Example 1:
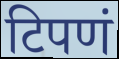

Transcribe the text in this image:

टिपणं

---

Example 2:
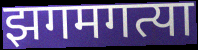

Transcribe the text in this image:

झगमगत्या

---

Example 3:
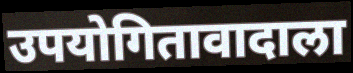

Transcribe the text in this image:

उपयोगितावादाला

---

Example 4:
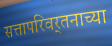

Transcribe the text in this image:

सत्तापरिवर्तनाच्या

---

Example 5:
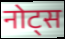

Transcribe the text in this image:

नोट्स